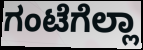
ಗಂಟೆಗೆಲ್ಲಾ